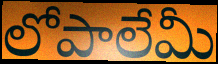
లోపాలేమీ